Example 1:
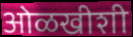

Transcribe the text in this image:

ओळखीशी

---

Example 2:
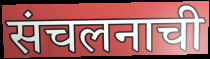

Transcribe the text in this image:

संचलनाची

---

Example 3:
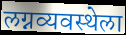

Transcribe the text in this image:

लग्नव्यवस्थेला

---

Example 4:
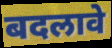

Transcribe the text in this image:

बदलावे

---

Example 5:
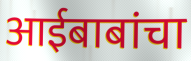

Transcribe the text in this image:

आईबाबांचा